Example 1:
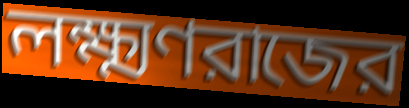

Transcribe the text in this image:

লক্ষ্মণরাজের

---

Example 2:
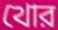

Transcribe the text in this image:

থোর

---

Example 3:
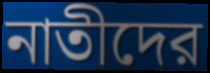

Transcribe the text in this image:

নাতীদের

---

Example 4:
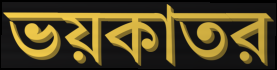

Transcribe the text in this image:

ভয়কাতর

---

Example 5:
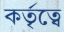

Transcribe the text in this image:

কর্তৃত্বে